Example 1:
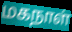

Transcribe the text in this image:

மகநாள்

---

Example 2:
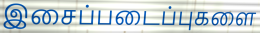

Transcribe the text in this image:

இசைப்படைப்புகளை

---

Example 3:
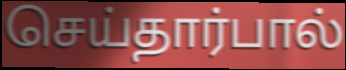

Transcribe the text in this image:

செய்தார்பால்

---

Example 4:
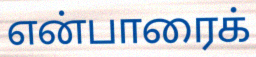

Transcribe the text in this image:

என்பாரைக்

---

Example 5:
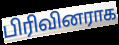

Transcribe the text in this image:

பிரிவினராக